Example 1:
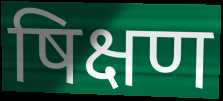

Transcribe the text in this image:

षिक्षण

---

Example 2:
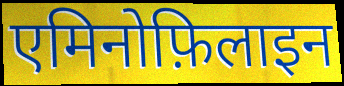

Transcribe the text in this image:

एमिनोफ़िलाइन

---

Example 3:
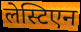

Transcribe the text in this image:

लेस्टिएन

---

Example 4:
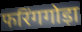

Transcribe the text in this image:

फरिंगगोड़ा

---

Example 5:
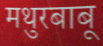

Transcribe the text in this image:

मथुरबाबू